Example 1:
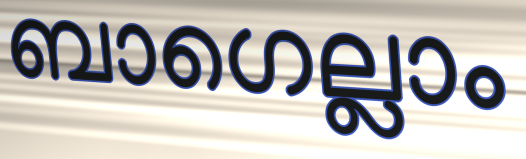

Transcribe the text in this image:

ബാഗെല്ലാം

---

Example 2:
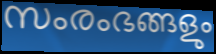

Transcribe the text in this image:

സംരംഭങ്ങളും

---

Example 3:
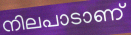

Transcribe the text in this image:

നിലപാടാണ്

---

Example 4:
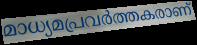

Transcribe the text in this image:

മാധ്യമപ്രവർത്തകരാണ്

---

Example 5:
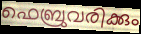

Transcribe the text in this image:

ഫെബ്രുവരിക്കും